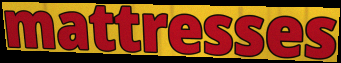
mattresses